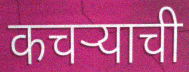
कचऱ्याची